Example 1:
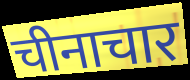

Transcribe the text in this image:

चीनाचार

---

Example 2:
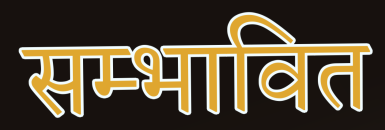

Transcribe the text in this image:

सम्भावित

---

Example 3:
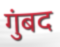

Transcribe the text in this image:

गुंबद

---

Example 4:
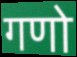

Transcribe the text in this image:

गणो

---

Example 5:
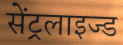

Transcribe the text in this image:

सेंट्रलाइज्ड